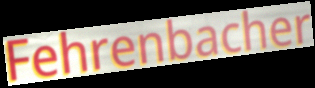
Fehrenbacher